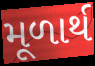
મૂળાર્થ